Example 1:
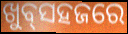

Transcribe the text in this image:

ଖୁବ୍‌ସହଜରେ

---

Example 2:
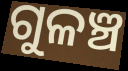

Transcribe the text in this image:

ଗୁଳଞ୍ଚ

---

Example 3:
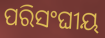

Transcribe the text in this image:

ପରିସଂଘୀୟ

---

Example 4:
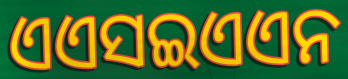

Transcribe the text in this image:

ଏଏସଇଏଏନ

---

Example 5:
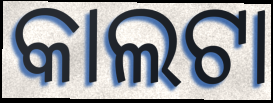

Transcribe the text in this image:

କାଲଟା